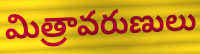
మిత్రావరుణులు